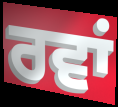
ਰਵਾਂ